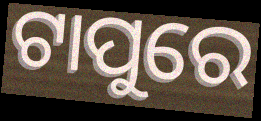
ଟାପୁରେ